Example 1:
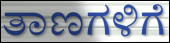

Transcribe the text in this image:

ತಾಣಗಳಿಗೆ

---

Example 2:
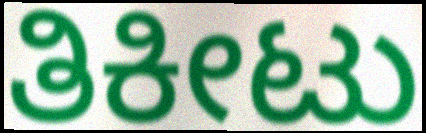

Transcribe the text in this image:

ತಿಕೀಟು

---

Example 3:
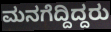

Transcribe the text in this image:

ಮನಗೆದ್ದಿದ್ದರು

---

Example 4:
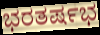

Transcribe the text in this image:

ಭರತರ್ಷಭ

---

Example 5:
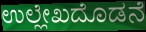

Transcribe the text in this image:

ಉಲ್ಲೇಖದೊಡನೆ